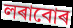
লৰাবোৰ